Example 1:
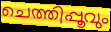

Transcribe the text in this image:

ചെത്തിപ്പൂവും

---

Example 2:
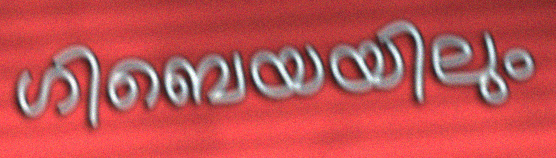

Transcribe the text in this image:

ഗിബെയയിലും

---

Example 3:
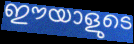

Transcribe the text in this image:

ഈയാളുടെ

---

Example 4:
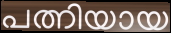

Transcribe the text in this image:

പത്നിയായ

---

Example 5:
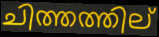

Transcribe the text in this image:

ചിത്തത്തില്